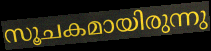
സൂചകമായിരുന്നു